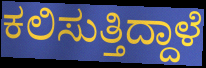
ಕಲಿಸುತ್ತಿದ್ದಾಳೆ